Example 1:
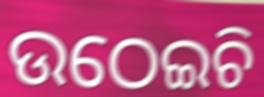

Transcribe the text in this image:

ଉଠେଇଚି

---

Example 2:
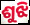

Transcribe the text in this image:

ଶୁଝି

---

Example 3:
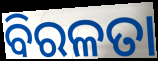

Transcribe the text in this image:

ବିରଳତା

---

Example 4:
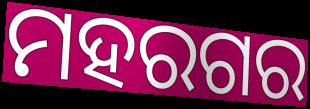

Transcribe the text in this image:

ମହରଗର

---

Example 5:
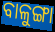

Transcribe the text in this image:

ବାଳୁଙ୍ଗା